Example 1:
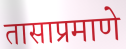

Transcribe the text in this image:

तासाप्रमाणे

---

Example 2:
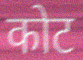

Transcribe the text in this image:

कोट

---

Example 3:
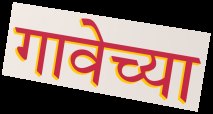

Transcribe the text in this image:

गावेच्या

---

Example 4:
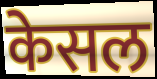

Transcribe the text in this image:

केसल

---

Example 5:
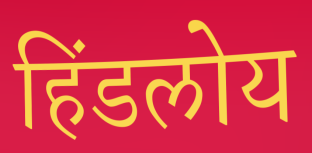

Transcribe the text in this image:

हिंडलोय